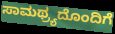
ಸಾಮಥ್ರ್ಯದೊಂದಿಗೆ